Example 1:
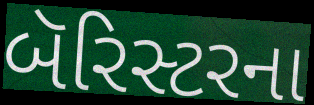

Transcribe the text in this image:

બૅરિસ્ટરના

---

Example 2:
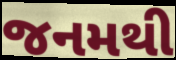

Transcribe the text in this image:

જનમથી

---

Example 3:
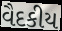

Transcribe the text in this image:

વૈદકીય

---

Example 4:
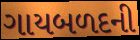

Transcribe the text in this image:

ગાયબળદની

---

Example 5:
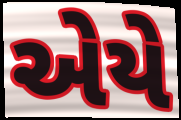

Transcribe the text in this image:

એયે